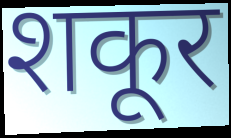
शकूर